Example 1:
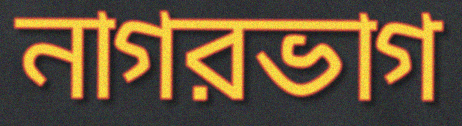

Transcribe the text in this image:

নাগরভাগ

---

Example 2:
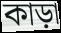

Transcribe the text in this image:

কাড়া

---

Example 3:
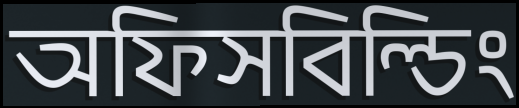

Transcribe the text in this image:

অফিসবিল্ডিং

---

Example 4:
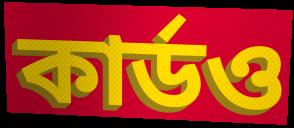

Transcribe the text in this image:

কার্ডও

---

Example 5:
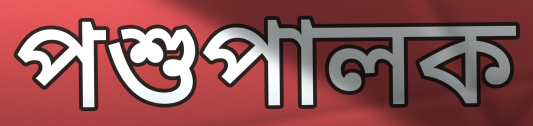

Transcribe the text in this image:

পশুপালক